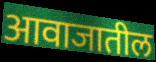
आवाजातील